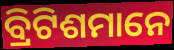
ବ୍ରିଟିଶମାନେ